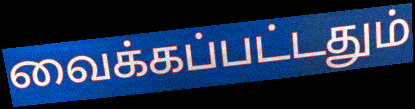
வைக்கப்பட்டதும்